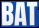
BAT